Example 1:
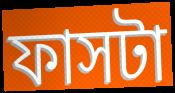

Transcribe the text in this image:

ফাসটা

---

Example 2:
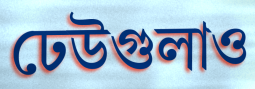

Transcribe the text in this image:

ঢেউগুলাও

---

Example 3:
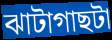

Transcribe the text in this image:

ঝাটাগাছটা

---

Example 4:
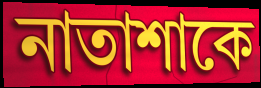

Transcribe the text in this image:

নাতাশাকে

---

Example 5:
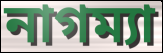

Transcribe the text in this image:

নাগম্যা